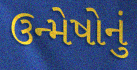
ઉન્મેષોનું